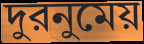
দুরনুমেয়